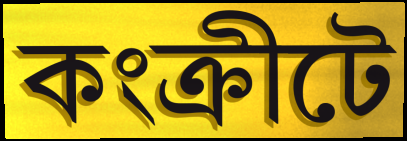
কংক্রীটে